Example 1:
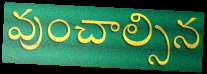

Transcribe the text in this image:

వుంచాల్సిన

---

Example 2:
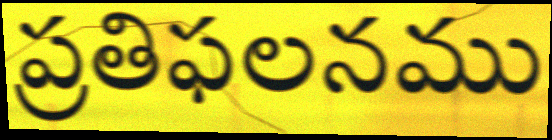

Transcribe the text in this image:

ప్రతిఫలనము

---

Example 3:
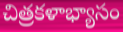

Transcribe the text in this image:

చిత్రకళాభ్యాసం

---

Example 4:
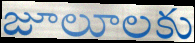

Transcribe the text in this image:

జూలూలకు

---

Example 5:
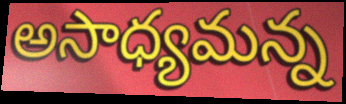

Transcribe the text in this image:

అసాధ్యమన్న